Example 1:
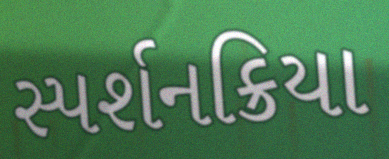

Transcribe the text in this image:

સ્પર્શનક્રિયા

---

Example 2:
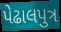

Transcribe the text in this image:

પેઢાલપુત્ર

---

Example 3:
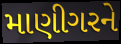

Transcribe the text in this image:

માણીગરને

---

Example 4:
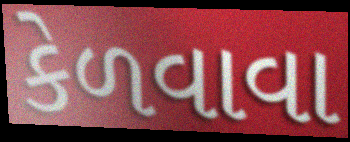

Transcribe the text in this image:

કેળવાવા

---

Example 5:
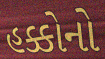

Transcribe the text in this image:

હક્કોનો